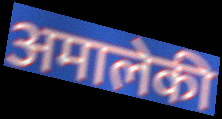
अमालेकी